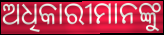
ଅଧିକାରୀମାନଙ୍କୁ